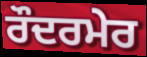
ਰੌਦਰਮੇਰ